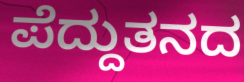
ಪೆದ್ದುತನದ